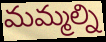
మమ్మల్ని